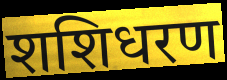
शशिधरण